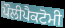
ਪੌਲੀਪੈਕਟੋਮੀ